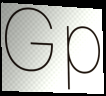
Gp